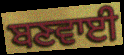
ਬਣਵਾਈ